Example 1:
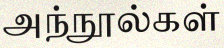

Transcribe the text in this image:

அந்நூல்கள்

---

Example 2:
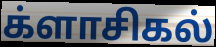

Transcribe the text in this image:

க்ளாசிகல்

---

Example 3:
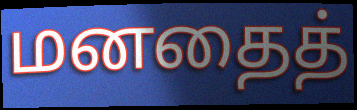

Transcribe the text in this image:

மனதைத்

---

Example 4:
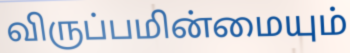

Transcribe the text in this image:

விருப்பமின்மையும்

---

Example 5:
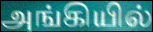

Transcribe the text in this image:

அங்கியில்